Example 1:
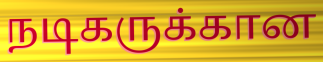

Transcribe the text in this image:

நடிகருக்கான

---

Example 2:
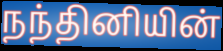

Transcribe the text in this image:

நந்தினியின்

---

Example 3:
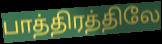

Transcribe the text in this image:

பாத்திரத்திலே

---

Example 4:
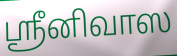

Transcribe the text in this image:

ஸ்ரீனிவாஸ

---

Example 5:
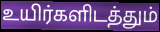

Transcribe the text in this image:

உயிர்களிடத்தும்